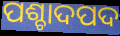
ପଶ୍ଚାଦପଦ